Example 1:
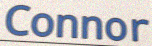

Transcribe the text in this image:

Connor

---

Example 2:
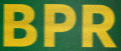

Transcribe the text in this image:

BPR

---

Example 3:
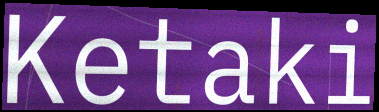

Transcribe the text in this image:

Ketaki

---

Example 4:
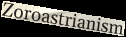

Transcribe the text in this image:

Zoroastrianism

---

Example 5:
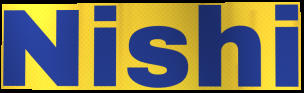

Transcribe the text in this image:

Nishi